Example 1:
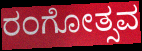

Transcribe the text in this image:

ರಂಗೋತ್ಸವ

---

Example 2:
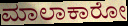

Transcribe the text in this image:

ಮಾಲಾಕಾರೋ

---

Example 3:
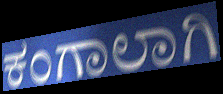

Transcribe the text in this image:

ಕಂಗಾಲಾಗಿ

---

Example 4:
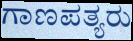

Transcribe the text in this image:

ಗಾಣಪತ್ಯರು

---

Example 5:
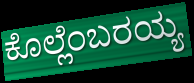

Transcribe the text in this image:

ಕೊಲ್ಲೆಂಬರಯ್ಯ